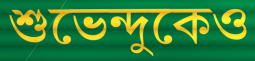
শুভেন্দুকেও